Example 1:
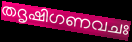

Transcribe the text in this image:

തദൃഷിഗണവചഃ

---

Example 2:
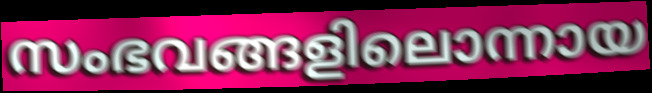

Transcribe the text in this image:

സംഭവങ്ങളിലൊന്നായ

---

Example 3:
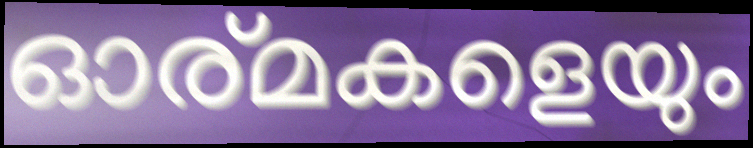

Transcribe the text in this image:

ഓര്മകളെയും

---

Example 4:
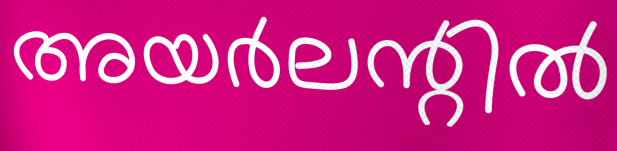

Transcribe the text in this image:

അയർലന്റിൽ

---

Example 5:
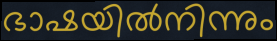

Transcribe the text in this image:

ഭാഷയിൽനിന്നും